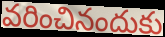
వరించినందుకు